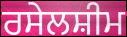
ਰਸੇਲਸ਼ੀਮ